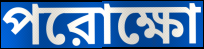
পরোক্ষো